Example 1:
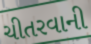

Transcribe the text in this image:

ચીતરવાની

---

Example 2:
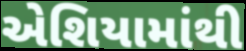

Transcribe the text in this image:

એશિયામાંથી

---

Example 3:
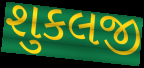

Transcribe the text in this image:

શુકલજી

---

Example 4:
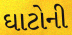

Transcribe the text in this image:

ઘાટોની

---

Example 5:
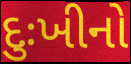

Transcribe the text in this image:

દુઃખીનો